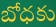
బోధకు